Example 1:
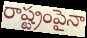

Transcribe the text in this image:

రాష్ట్రంపైనా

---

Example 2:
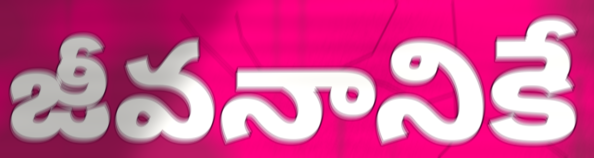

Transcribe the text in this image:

జీవనానికే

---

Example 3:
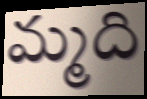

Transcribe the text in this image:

మ్మది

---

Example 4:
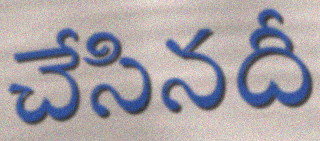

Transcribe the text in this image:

చేసినదీ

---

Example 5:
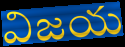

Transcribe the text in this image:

విజయ